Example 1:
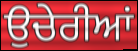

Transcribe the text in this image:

ਉਚੇਰੀਆਂ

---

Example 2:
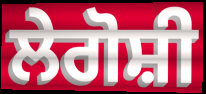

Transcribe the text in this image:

ਲੇਗੋਸ਼ੀ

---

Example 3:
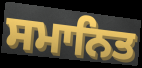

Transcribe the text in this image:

ਸਮਾਨਿਤ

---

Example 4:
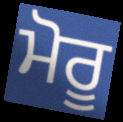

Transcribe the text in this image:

ਮੋਰੂ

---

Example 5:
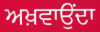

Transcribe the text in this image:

ਅਖ਼ਵਾਉਂਦਾ